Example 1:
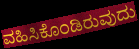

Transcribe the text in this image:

ವಹಿಸಿಕೊಂಡಿರುವುದು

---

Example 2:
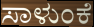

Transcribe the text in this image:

ಸಾಳುಂಕೆ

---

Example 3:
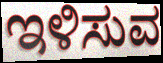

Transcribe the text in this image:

ಇಳಿಸುವ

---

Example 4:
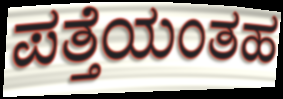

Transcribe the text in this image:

ಪತ್ತೆಯಂತಹ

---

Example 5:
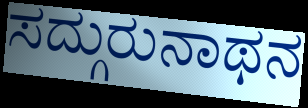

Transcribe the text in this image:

ಸದ್ಗುರುನಾಥನ